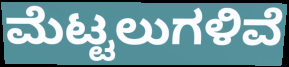
ಮೆಟ್ಟಲುಗಳಿವೆ